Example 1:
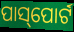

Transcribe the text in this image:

ପାସ୍‌ପୋର୍ଟ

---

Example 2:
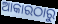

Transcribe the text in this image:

ଆକାରଠାରୁ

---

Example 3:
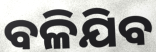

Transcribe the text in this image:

ବଳିଯିବ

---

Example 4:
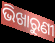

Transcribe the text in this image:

ଭିଖାରୁଣୀ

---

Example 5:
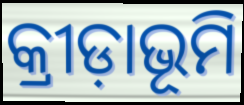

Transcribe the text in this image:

କ୍ରୀଡ଼ାଭୂମି